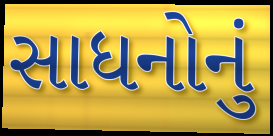
સાધનોનું